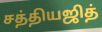
சத்தியஜித்